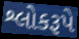
શ્લોકરૂપે